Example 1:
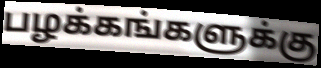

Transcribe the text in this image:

பழக்கங்களுக்கு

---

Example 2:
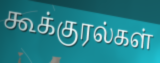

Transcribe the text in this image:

கூக்குரல்கள்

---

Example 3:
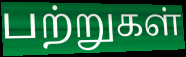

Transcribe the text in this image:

பற்றுகள்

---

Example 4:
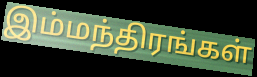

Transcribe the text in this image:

இம்மந்திரங்கள்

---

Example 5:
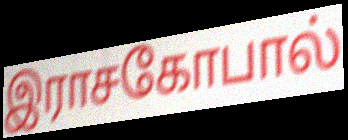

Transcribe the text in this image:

இராசகோபால்